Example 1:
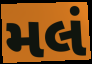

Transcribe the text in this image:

મલં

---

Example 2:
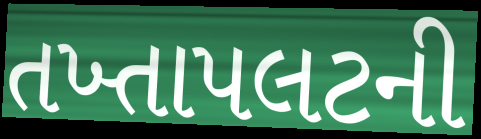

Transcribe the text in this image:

તખ્તાપલટની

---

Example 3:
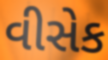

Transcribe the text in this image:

વીસેક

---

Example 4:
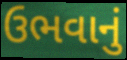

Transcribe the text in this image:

ઉભવાનું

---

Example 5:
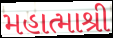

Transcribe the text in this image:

મહાત્માશ્રી